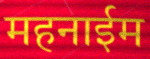
महनाईम